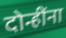
दोन्हींना